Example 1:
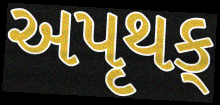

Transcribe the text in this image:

અપૃથક્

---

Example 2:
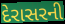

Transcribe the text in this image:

દેરાસરની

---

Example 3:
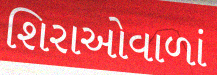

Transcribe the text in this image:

શિરાઓવાળાં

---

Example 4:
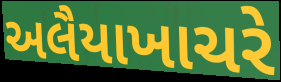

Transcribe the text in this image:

અલૈયાખાચરે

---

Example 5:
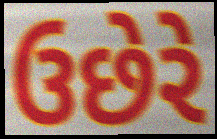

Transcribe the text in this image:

ઉછેરે